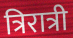
त्रिरात्री